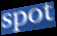
spot